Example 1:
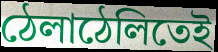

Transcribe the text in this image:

ঠেলাঠেলিতেই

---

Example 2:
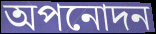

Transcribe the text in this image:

অপনোদন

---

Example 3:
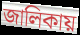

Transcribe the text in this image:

জালিকায়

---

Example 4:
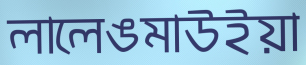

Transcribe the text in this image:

লালেঙমাউইয়া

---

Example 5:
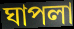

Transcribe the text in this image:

ঘাপলা